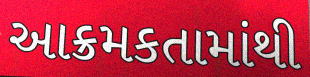
આક્રમકતામાંથી